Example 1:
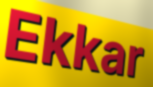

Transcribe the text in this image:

Ekkar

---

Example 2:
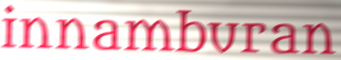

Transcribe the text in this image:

innamburan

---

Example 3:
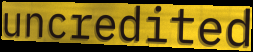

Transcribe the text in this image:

uncredited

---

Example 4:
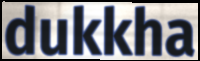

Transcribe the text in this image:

dukkha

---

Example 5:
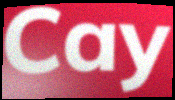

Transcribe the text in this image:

Cay